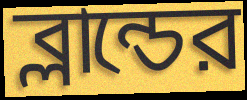
ব্লান্ডের